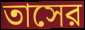
তাসের